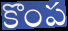
కొంప